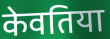
केवतिया